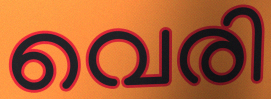
വെരി